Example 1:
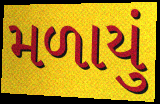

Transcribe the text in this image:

મળાયું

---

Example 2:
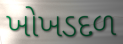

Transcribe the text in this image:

ખોખડદળ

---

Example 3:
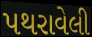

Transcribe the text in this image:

પથરાવેલી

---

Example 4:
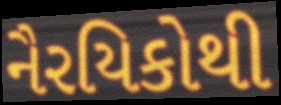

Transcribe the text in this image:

નૈરયિકોથી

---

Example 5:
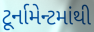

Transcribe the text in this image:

ટૂર્નામેન્ટમાંથી